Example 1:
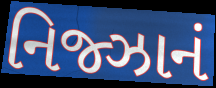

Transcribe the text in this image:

નિજ્ઝાનં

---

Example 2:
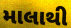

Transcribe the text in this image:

માલાથી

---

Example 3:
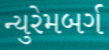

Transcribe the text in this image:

ન્યુરેમબર્ગ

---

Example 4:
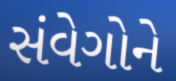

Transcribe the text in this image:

સંવેગોને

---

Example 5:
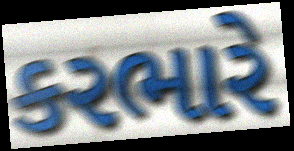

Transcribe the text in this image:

કરભારે